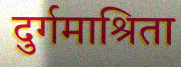
दुर्गमाश्रिता